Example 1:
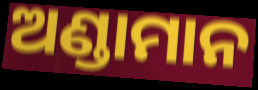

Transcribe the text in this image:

ଅଣ୍ଡାମାନ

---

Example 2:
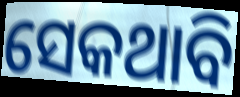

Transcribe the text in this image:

ସେକଥାବି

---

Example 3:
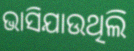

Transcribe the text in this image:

ଭାସିଯାଉଥିଲି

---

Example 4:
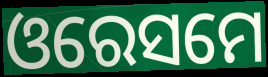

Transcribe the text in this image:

ଓରେସମେ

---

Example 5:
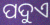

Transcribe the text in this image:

ପଦୁଏ